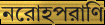
নরোহপরাণি